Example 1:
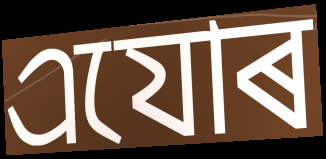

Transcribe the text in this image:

এযোৰ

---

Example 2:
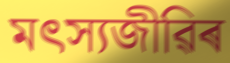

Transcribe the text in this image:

মৎস্যজীৱিৰ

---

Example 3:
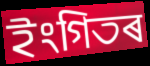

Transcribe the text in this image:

ইংগিতৰ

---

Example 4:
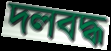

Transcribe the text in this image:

দলবদ্ধ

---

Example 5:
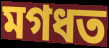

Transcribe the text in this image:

মগধত